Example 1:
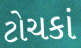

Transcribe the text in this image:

ટોચકાં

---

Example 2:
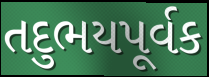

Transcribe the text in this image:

તદુભયપૂર્વક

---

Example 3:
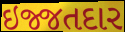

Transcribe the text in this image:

ઇજ્જતદાર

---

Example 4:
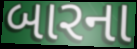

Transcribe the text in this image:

બારના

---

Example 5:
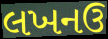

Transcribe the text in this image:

લખનઉ